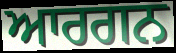
ਆਰਗਨ